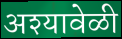
अश्यावेळी